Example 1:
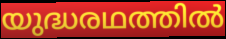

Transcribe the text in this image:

യുദ്ധരഥത്തിൽ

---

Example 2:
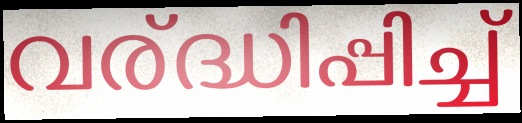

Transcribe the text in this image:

വര്ദ്ധിപ്പിച്ച്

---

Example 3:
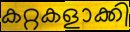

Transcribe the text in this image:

കറ്റകളാക്കി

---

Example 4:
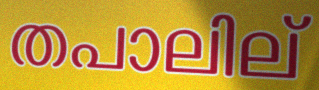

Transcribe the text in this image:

തപാലില്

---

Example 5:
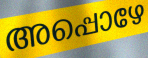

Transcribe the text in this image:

അപ്പൊഴേ